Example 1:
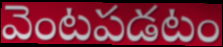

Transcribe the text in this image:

వెంటపడటం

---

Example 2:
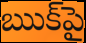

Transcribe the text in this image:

ఋక్‌పై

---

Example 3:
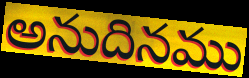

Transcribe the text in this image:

అనుదినము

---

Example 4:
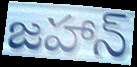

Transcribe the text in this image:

జహాన్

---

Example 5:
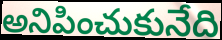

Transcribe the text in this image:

అనిపించుకునేది